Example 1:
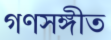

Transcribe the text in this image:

গণসঙ্গীত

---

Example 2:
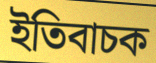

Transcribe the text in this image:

ইতিবাচক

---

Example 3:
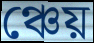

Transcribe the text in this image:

ঞ্চেয়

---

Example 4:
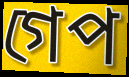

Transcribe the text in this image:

গেপ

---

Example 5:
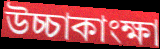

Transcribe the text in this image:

উচ্চাকাংক্ষা